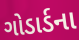
ગોડાર્ડના